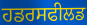
ਹਡਰਸਫੀਲਡ